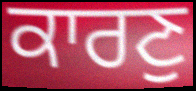
ਕਾਰਣੁ